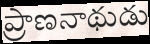
ప్రాణనాథుడు